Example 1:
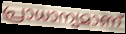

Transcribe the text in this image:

പ്രാധാന്യമാണ്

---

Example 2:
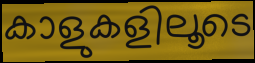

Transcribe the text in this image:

കാളുകളിലൂടെ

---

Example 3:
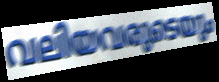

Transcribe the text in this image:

വലിയവരുടെയും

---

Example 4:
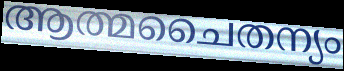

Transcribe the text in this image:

ആത്മചൈതന്യം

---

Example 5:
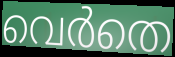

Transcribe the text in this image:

വെർതെ